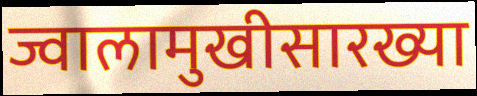
ज्वालामुखीसारख्या